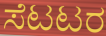
ಸೆಟಟರ